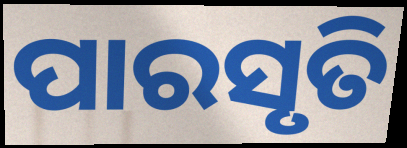
ପାରସୃତି